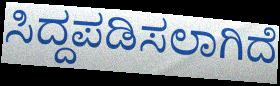
ಸಿದ್ದಪಡಿಸಲಾಗಿದೆ